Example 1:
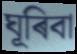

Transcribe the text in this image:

ঘূৰিবা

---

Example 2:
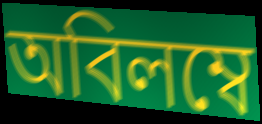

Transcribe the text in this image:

অবিলম্বে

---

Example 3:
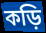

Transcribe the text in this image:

কড়ি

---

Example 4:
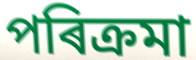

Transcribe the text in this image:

পৰিক্ৰমা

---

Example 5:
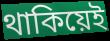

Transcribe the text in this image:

থাকিয়েই